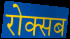
रोक्सब